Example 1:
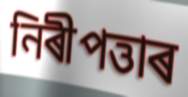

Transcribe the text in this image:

নিৰীপত্তাৰ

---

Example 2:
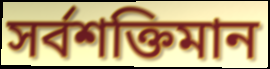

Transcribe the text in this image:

সৰ্বশক্তিমান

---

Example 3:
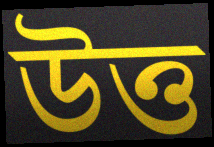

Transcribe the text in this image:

উত্ত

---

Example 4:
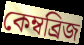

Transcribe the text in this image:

কেম্বব্ৰিজ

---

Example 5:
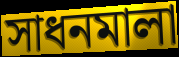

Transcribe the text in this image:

সাধনমালা